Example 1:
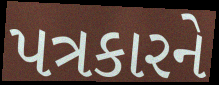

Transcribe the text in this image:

પત્રકારને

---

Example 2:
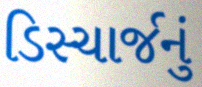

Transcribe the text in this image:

ડિસ્ચાર્જનું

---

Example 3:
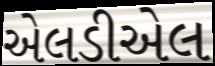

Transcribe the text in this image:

એલડીએલ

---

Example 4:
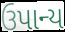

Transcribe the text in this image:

ઉપાન્ય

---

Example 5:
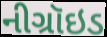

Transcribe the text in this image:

નીગ્રૉઇડ